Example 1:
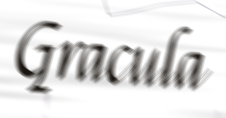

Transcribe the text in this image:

Gracula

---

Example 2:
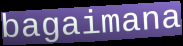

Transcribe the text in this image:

bagaimana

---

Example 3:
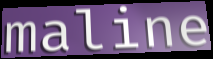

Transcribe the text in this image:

maline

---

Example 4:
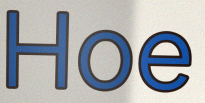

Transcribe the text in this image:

Hoe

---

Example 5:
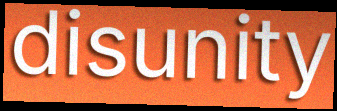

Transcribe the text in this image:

disunity